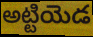
అట్టియెడ